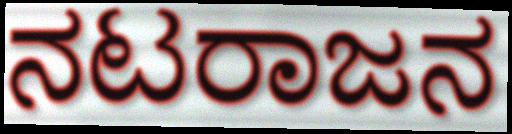
ನಟರಾಜನ